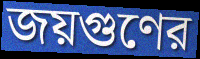
জয়গুণের